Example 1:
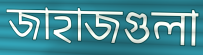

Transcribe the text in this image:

জাহাজগুলা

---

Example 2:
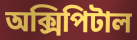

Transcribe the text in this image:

অক্সিপিটাল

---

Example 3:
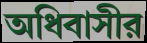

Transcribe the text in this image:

অধিবাসীর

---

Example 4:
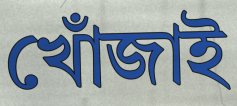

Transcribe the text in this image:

খোঁজাই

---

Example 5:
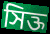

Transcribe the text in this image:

সিক্ত